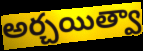
అర్చయిత్వా